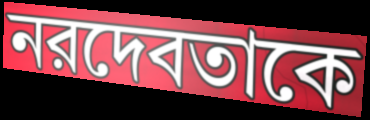
নরদেবতাকে